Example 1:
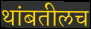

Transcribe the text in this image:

थांबतीलच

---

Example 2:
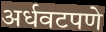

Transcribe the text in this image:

अर्धवटपणे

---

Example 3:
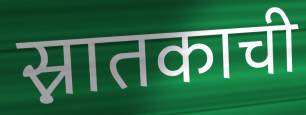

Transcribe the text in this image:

स्नातकाची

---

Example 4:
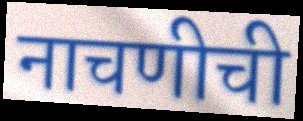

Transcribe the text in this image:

नाचणीची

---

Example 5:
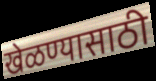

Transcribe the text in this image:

खेळण्यासाठी